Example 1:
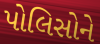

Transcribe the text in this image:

પોલિસોને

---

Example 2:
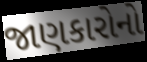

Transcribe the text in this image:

જાણકારોનો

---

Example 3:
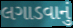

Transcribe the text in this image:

લગાડવાનું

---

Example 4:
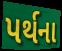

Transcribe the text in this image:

પર્થના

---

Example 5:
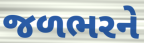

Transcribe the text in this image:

જળભરને